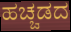
ಹಚ್ಚಡದ